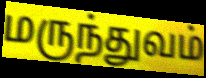
மருந்துவம்